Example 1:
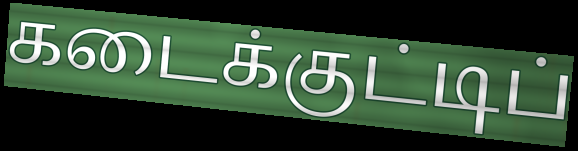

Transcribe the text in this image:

கடைக்குட்டிப்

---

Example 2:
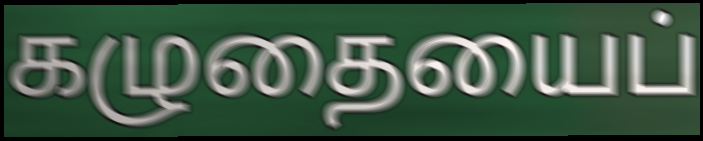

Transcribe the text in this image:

கழுதையைப்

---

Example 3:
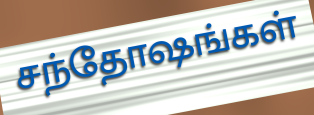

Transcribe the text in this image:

சந்தோஷங்கள்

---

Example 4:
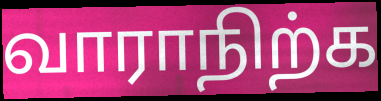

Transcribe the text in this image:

வாராநிற்க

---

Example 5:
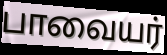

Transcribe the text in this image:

பாவையர்